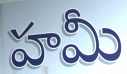
హమీ